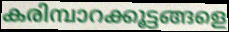
കരിമ്പാറക്കൂട്ടങ്ങളെ